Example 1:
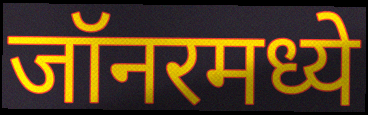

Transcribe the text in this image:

जॉनरमध्ये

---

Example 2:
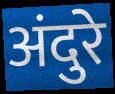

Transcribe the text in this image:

अंदुरे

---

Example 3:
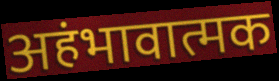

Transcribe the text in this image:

अहंभावात्मक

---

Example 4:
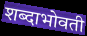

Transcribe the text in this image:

शब्दाभोवती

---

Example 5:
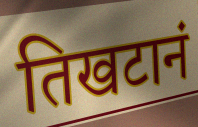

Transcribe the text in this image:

तिखटानं